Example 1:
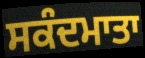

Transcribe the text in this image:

ਸਕੰਦਮਾਤਾ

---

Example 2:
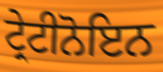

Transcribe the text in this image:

ਟ੍ਰੇਟੀਨੋਇਨ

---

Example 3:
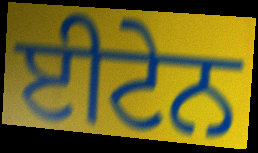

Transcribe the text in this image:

ਈਟੇਨ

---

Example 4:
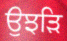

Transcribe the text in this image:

ਉਝੜਿ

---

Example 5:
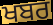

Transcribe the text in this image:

ਖਬਰ